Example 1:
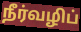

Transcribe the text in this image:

நீர்வழிப்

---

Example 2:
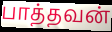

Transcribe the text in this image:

பாத்தவன்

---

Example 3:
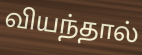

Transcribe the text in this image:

வியந்தால்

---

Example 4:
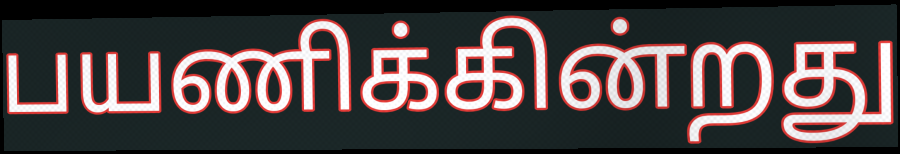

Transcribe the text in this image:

பயணிக்கின்றது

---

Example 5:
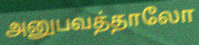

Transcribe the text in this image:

அனுபவத்தாலோ